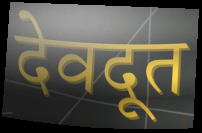
देवदूत